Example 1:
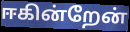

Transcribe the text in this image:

ஈகின்றேன்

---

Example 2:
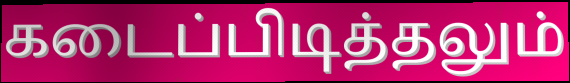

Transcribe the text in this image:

கடைப்பிடித்தலும்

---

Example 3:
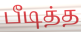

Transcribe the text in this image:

பீடித்த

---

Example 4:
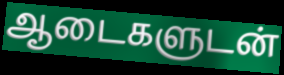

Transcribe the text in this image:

ஆடைகளுடன்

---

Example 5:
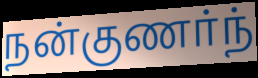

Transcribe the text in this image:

நன்குணர்ந்